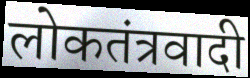
लोकतंत्रवादी